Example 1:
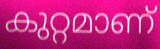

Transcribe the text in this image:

കുറ്റമാണ്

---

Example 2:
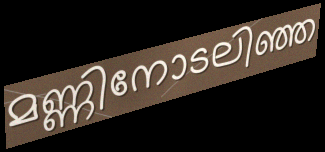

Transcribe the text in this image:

മണ്ണിനോടലിഞ്ഞ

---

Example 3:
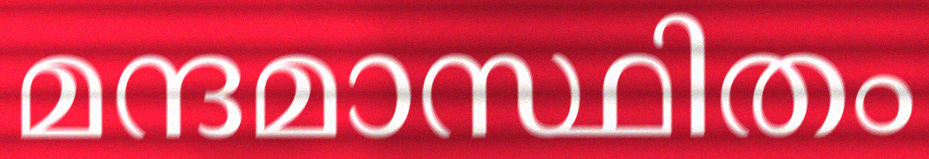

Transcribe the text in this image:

മന്ദമാസ്ഥിതം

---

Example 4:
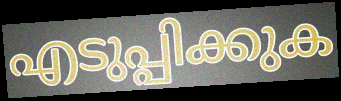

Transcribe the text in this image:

എടുപ്പിക്കുക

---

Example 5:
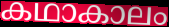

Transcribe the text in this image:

കഥാകാലം